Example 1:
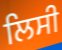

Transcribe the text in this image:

ਲਿਸੀ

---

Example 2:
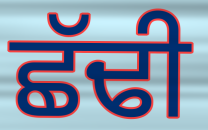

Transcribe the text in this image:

ਛੱਢੀ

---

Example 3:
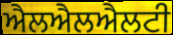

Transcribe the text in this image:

ਐਲਐਲਐਲਟੀ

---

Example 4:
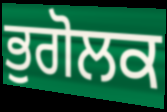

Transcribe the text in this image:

ਭੁਗੋਲਕ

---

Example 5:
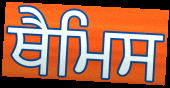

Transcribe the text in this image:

ਥੈਮਿਸ